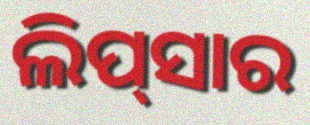
ଲିପ୍‌ସାର